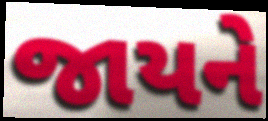
જાયને